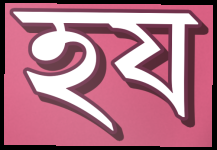
হয